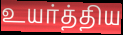
உயர்த்திய